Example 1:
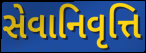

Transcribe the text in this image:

સેવાનિવૃત્તિ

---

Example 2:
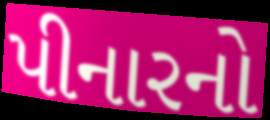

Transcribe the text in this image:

પીનારનો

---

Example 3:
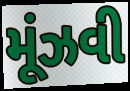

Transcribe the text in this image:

મૂંઝવી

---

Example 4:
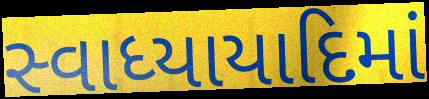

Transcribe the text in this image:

સ્વાધ્યાયાદિમાં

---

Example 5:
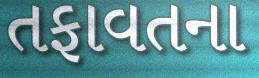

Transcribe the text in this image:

તફાવતના